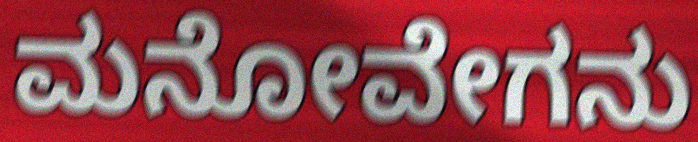
ಮನೋವೇಗನು